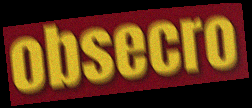
obsecro